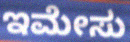
ಇಮೇಸು